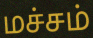
மச்சம்